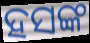
ହସଙ୍କ